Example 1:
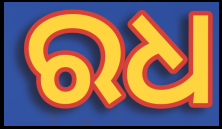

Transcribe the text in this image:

ରଧ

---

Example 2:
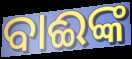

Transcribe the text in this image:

ବାଈଙ୍କ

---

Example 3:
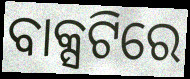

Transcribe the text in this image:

ବାକ୍ସଟିରେ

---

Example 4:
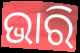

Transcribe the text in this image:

ଭାରି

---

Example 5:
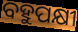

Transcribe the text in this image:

ବହୁପକ୍ଷୀ